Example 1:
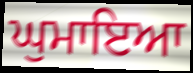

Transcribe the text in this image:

ਘੁਮਾਇਆ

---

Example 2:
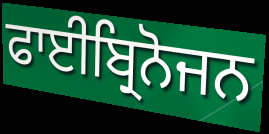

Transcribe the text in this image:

ਫਾਈਬ੍ਰਿਨੋਜਨ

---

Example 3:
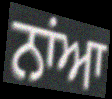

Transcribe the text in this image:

ਨਾਂਆ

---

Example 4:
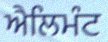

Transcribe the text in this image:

ਐਲਿਮੰਟ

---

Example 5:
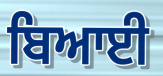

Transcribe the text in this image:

ਬਿਆਈ